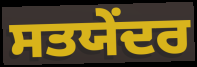
ਸਤਯੇਂਦਰ